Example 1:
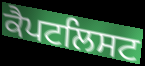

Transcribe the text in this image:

ਕੈਪਟਲਿਸਟ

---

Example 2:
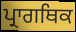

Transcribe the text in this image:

ਪ੍ਰਾਗਥਿਕ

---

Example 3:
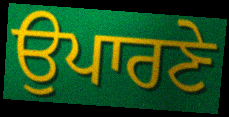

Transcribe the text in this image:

ਉਪਾਰਣੇ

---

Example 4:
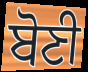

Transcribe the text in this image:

ਬੋਣੀ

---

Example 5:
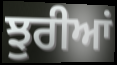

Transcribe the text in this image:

ਝੁਰੀਆਂ